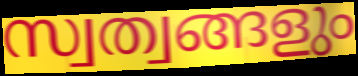
സ്വത്വങ്ങളും